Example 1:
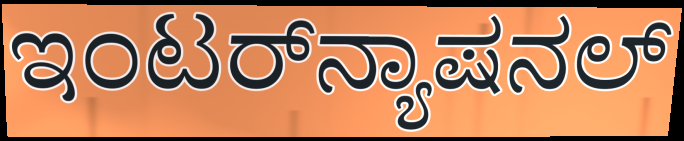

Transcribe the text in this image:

ಇಂಟರ್‌ನ್ಯಾಷನಲ್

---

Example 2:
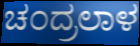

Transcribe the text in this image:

ಚಂದ್ರಲಾಳ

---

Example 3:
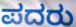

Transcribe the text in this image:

ಪದರು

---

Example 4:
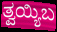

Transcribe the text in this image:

ತ್ವಯ್ಯಿಬ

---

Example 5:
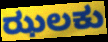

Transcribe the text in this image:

ಝಲಕು